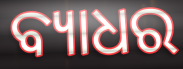
ବ୍ୟାଧର